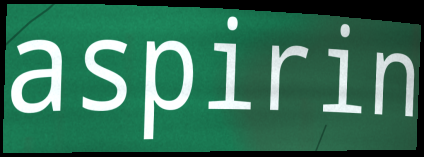
aspirin